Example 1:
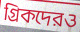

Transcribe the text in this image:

গ্রিকদেরও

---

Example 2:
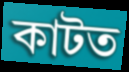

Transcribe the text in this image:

কাটত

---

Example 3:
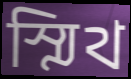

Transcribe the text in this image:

স্মিথ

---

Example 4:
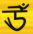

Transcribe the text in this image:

ঊঁ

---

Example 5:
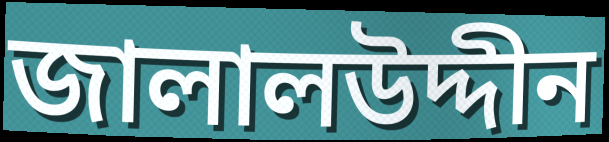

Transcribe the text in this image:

জালালউদ্দীন